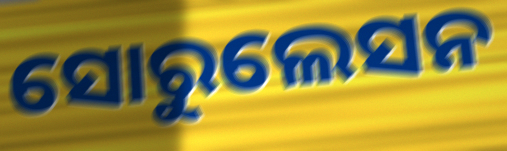
ସୋରୁଲେସନ